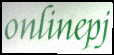
onlinepj